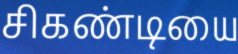
சிகண்டியை